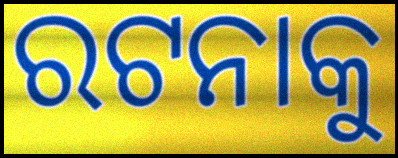
ରଟନାକୁ